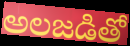
అలజడితో